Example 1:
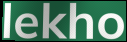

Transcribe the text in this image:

lekho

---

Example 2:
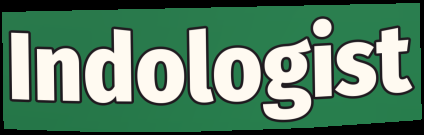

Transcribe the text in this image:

Indologist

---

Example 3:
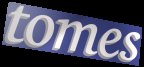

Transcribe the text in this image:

tomes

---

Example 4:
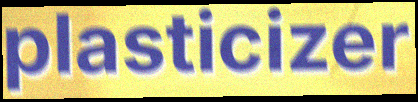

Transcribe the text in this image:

plasticizer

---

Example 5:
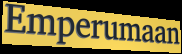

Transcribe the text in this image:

Emperumaan